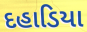
દહાડિયા